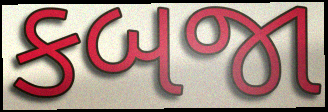
કબજા